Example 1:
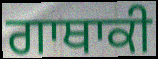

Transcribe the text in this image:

ਗਾਥਾਕੀ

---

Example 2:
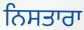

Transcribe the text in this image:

ਨਿਸਤਾਰਾ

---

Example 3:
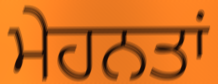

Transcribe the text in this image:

ਮੇਹਨਤਾਂ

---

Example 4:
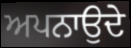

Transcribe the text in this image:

ਅਪਨਾਉਦੇ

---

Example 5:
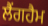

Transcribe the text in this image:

ਲੈਂਗਹੈਮ